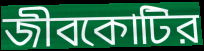
জীবকোটির